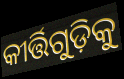
କୀର୍ତ୍ତିଗୁଡ଼ିକୁ